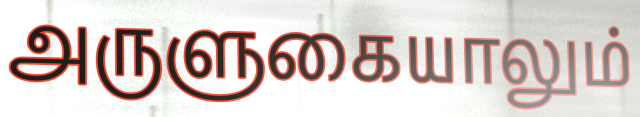
அருளுகையாலும்